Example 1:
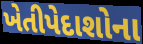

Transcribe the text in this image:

ખેતીપેદાશોના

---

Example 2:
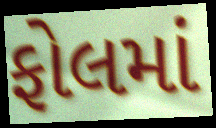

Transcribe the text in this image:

ફોલમાં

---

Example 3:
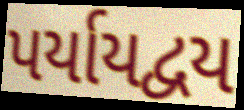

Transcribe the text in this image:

પર્યાયદ્વય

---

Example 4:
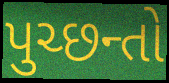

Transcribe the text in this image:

પુચ્છન્તો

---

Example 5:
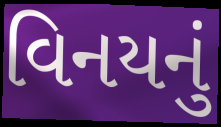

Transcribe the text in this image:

વિનયનું